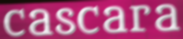
cascara